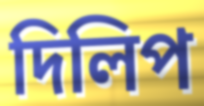
দিলিপ